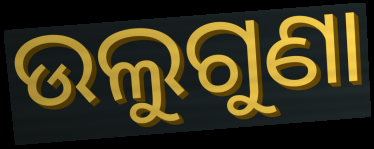
ଉଲୁଗୁଣା